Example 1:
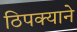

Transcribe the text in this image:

ठिपक्याने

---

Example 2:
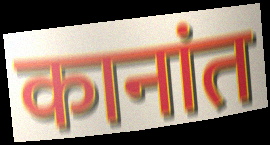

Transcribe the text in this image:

कानांत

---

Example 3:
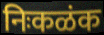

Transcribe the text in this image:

निःकळंक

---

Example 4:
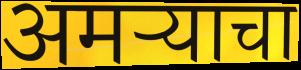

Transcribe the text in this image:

अमऱ्याचा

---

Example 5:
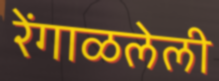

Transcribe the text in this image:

रेंगाळलेली